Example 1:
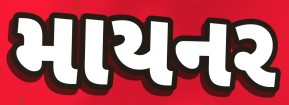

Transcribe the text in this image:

માયનર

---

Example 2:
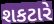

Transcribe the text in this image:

શકટારે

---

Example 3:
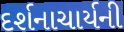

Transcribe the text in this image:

દર્શનાચાર્યની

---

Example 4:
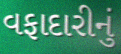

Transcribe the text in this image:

વફાદારીનું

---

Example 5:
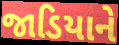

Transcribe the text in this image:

જાડિયાને